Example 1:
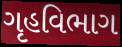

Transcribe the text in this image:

ગૃહવિભાગ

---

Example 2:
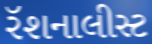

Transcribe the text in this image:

રૅશનાલીસ્ટ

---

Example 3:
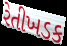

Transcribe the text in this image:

રેતીખડક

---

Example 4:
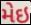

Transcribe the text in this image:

મેઇ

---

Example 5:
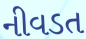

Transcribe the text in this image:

નીવડત